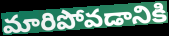
మారిపోవడానికి